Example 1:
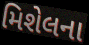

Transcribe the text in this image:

મિશેલના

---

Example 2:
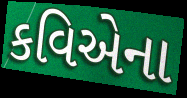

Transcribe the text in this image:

કવિએના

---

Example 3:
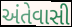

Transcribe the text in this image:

અંતેવાસી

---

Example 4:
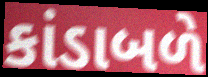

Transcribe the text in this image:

કાંડાબળે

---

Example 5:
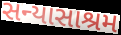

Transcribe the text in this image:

સન્યાસાશ્રમ